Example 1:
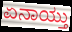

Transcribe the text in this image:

ಏನಾಯ್ತು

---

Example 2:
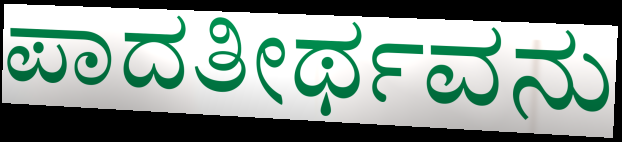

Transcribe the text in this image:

ಪಾದತೀರ್ಥವನು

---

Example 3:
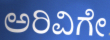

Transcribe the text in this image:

ಅರಿವಿಗೇ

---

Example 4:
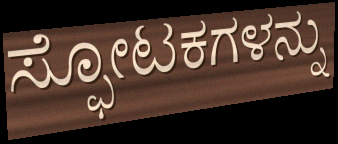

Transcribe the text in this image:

ಸ್ಫೋಟಕಗಳನ್ನು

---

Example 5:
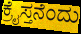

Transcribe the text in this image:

ಕ್ರೈಸ್ತನೆಂದು